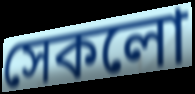
সেকলো